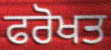
ਫਰੋਖਤ